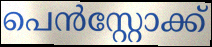
പെൻസ്റ്റോക്ക്